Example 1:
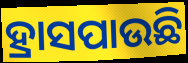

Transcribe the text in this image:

ହ୍ରାସପାଉଛି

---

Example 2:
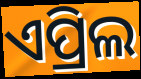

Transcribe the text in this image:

ଏପ୍ରିଲ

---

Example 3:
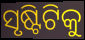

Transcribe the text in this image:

ସୃଷ୍ଟିଟିକୁ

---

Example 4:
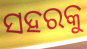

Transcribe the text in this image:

ସହରକୁ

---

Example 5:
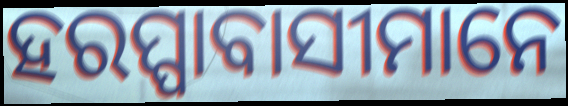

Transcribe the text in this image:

ହରପ୍ପାବାସୀମାନେ